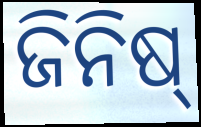
ଜିନିଷ୍